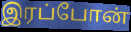
இரப்போன்